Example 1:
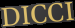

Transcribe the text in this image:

DICCI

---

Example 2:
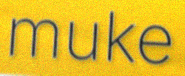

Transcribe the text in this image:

muke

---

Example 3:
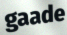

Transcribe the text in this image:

gaade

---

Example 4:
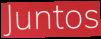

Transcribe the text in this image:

Juntos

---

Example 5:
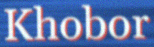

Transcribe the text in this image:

Khobor